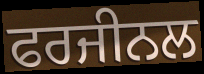
ਫਰਜੀਨਲ